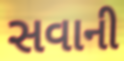
સવાની